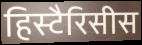
हिस्टैरिसीस